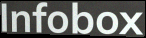
Infobox